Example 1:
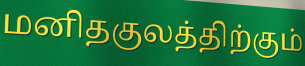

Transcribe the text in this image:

மனிதகுலத்திற்கும்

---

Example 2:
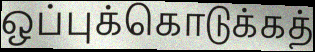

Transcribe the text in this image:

ஒப்புக்கொடுக்கத்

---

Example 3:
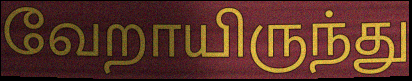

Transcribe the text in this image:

வேறாயிருந்து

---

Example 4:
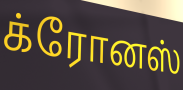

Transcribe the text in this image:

க்ரோனஸ்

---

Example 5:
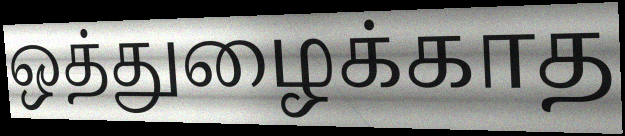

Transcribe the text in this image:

ஒத்துழைக்காத